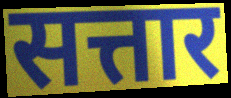
सत्तार